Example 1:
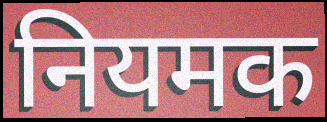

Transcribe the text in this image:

नियमक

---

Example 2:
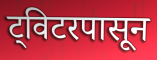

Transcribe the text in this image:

ट्विटरपासून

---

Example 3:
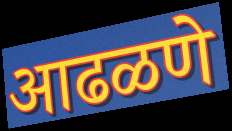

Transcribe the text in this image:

आढळणे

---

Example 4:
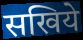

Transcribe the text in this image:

सखिये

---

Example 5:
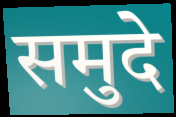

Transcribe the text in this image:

समुदे